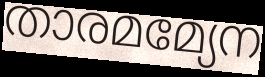
താരമമ്യേന